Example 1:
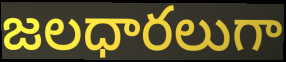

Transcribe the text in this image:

జలధారలుగా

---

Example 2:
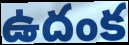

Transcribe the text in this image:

ఉదంక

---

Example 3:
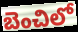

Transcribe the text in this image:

బెంచిలో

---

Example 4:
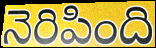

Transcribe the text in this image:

నెరిపింది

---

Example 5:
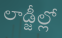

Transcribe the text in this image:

లాడ్జీల్లో